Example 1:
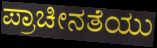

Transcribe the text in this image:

ಪ್ರಾಚೀನತೆಯು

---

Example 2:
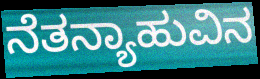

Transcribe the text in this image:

ನೆತನ್ಯಾಹುವಿನ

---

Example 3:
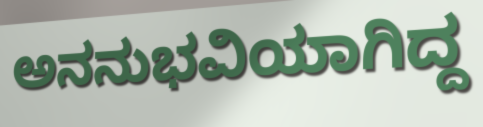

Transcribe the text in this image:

ಅನನುಭವಿಯಾಗಿದ್ದ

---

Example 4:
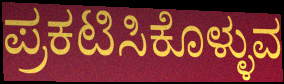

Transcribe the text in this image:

ಪ್ರಕಟಿಸಿಕೊಳ್ಳುವ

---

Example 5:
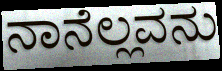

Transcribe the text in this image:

ನಾನೆಲ್ಲವನು